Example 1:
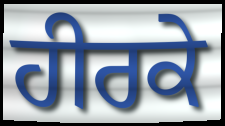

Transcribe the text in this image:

ਹੀਰਕੇ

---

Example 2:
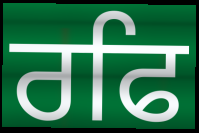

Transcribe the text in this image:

ਰਫਿ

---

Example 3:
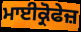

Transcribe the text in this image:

ਮਾਈਕ੍ਰੋਫੇਜ਼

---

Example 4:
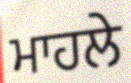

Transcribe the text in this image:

ਮਾਹਲੇ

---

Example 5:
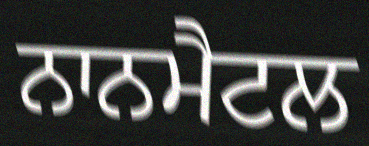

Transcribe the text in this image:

ਨਾਨਮੈਟਲ